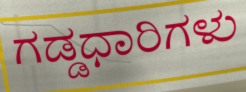
ಗಡ್ಡಧಾರಿಗಳು